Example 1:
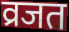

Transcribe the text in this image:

व्रजत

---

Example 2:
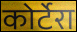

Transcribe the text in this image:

कोर्टेरा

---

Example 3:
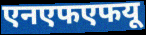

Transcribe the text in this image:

एनएफएफयू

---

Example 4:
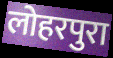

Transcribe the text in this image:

लोहरपुरा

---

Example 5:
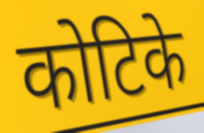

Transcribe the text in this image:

कोटिके